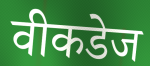
वीकडेज